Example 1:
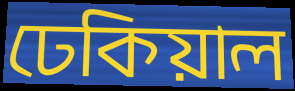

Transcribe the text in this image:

ঢেকিয়াল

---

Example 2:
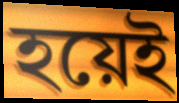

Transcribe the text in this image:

হয়েই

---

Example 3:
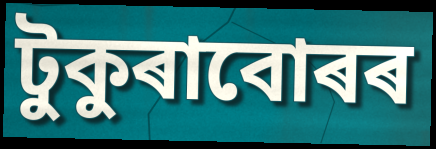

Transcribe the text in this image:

টুকুৰাবোৰৰ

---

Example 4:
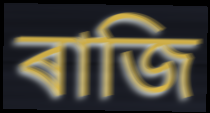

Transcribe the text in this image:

ৰাজি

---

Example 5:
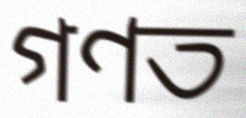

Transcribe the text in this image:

গণত